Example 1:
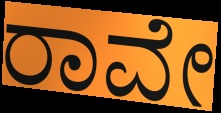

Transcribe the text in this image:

ರಾವೇ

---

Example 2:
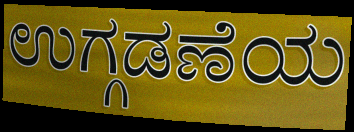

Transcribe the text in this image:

ಉಗ್ಗಡಣೆಯ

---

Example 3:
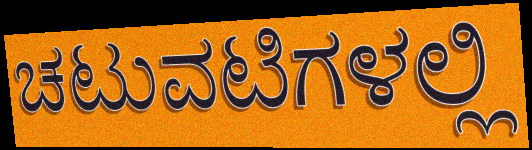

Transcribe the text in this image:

ಚಟುವಟಿಗಳಲ್ಲಿ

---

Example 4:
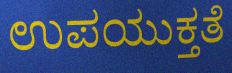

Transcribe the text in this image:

ಉಪಯುಕ್ತತೆ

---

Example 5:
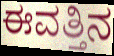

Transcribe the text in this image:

ಈವತ್ತಿನ